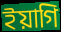
ইয়াগি